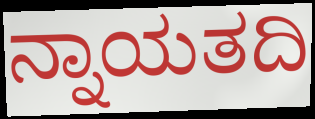
ನ್ನಾಯತದಿ